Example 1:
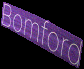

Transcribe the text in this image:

Bomford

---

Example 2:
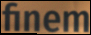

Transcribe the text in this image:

finem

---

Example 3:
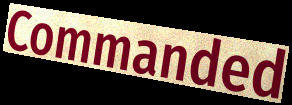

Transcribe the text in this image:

Commanded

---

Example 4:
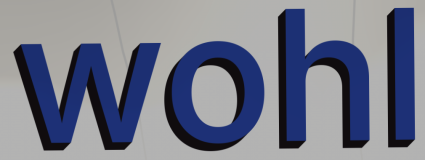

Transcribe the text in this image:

wohl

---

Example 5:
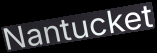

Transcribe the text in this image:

Nantucket